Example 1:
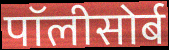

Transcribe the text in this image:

पॉलीसोर्ब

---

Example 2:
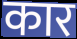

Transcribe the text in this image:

कार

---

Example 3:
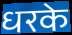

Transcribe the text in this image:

धरके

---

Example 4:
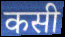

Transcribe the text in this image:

कसी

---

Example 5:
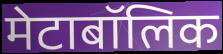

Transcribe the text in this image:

मेटाबॉलिक